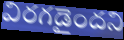
విరగడైందని